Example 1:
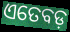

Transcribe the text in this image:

ଏତେବଡ଼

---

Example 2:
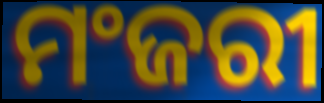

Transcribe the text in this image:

ମଂଜରୀ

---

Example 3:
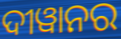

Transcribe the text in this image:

ଦୀୱାନର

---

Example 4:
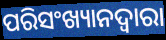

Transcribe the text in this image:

ପରିସଂଖ୍ୟାନଦ୍ଵାରା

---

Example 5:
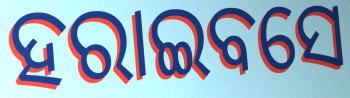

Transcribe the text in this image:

ହରାଇବସେ